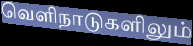
வெளிநாடுகளிலும்